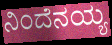
ನಿಂದೆನಯ್ಯ